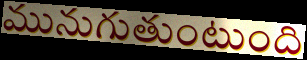
మునుగుతుంటుంది